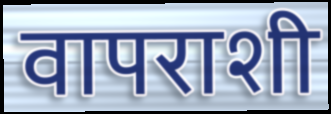
वापराशी